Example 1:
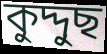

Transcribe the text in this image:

কুদ্দুছ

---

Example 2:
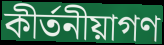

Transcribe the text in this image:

কীর্তনীয়াগণ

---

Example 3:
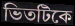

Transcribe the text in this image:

ভিতটিকে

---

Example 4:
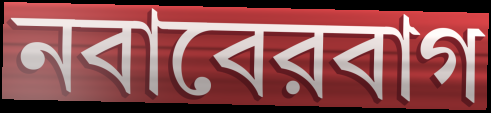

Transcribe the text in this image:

নবাবেরবাগ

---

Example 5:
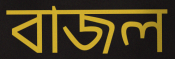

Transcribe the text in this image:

বাজল